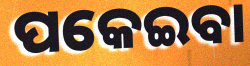
ପକେଇବା